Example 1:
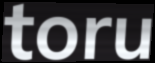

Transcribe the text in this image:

toru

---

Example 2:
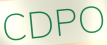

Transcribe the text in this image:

CDPO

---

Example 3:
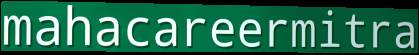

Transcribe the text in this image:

mahacareermitra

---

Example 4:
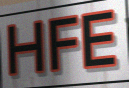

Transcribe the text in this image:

HFE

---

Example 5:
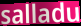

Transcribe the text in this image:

salladu